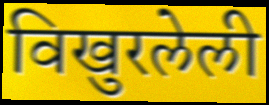
विखुरलेली